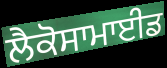
ਲੈਕੋਸਾਮਾਈਡ